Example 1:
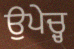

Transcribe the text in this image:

ਉਪੇਚ੍ਚ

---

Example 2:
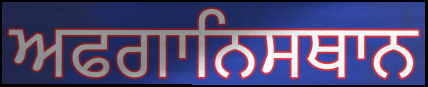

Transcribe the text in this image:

ਅਫਗਾਨਿਸਥਾਨ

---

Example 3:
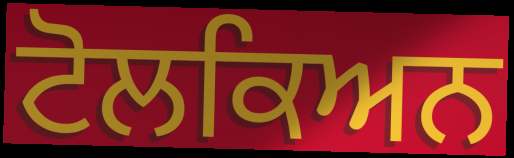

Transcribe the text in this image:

ਟੋਲਕਿਅਨ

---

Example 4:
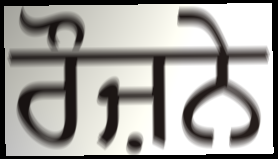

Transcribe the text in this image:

ਰੌਜ਼ਨੇ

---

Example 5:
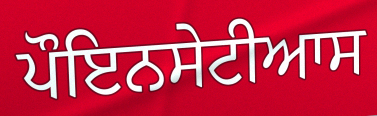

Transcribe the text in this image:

ਪੌਇਨਸੇਟੀਆਸ